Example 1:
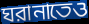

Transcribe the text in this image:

ঘরানাতেও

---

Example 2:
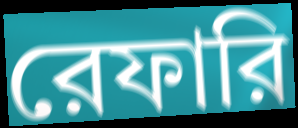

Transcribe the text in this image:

রেফারি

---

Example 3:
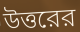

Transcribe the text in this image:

উত্তরের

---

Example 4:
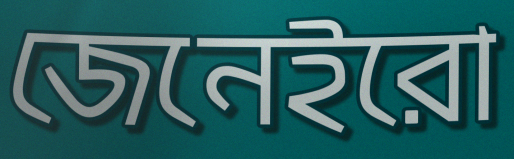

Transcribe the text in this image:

জেনেইরো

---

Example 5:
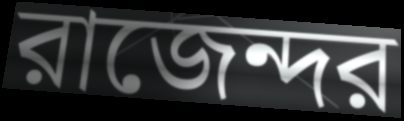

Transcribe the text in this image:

রাজেন্দর